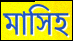
মাসিহ